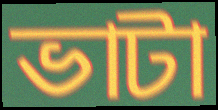
ভাটা